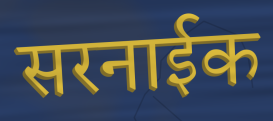
सरनाईक